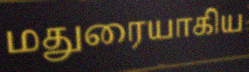
மதுரையாகிய